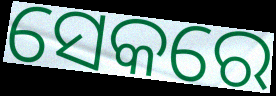
ସେକରେ